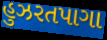
હુઝરતપાગા